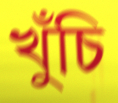
খুঁচি